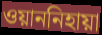
ওয়াননিহায়া